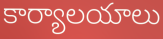
కార్యాలయాలు